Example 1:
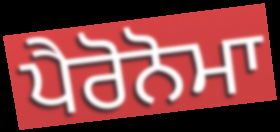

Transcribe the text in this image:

ਪੈਰੋਨੋਮਾ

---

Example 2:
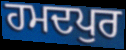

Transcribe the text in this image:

ਹਮਦਪੁਰ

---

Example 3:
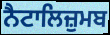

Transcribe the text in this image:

ਨੈਟਾਲਿਜ਼ੁਮਬ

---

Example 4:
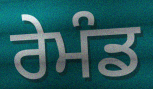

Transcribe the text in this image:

ਰੇਮੰਡ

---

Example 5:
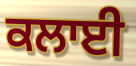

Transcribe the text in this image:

ਕਲਾਈ